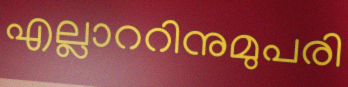
എല്ലാററിനുമുപരി